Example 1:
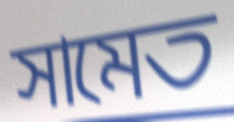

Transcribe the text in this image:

সামেত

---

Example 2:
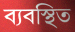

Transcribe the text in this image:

ব্যবস্থিত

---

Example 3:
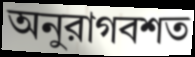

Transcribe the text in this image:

অনুরাগবশত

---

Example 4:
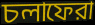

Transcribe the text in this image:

চলাফেরা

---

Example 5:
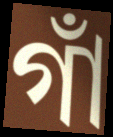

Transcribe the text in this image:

গাঁ